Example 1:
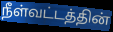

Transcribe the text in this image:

நீள்வட்டத்தின்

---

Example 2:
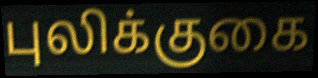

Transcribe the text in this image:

புலிக்குகை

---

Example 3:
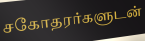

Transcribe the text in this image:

சகோதரர்களுடன்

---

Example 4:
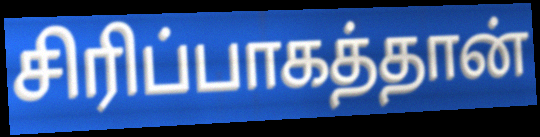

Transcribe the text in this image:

சிரிப்பாகத்தான்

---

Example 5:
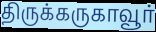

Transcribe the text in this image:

திருக்கருகாவூர்